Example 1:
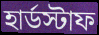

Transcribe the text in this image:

হার্ডস্টাফ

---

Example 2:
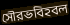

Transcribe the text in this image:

সৌরভবিহবল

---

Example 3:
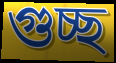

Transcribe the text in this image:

গুচ্ছ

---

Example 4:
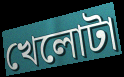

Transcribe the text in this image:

খেলোটা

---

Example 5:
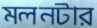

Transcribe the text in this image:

মলনটার